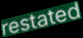
restated